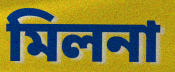
মিলনা